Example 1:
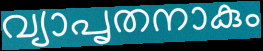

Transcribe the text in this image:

വ്യാപൃതനാകും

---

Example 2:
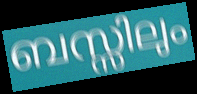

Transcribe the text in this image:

ബസ്സിലും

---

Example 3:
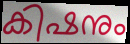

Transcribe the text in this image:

കിഷനും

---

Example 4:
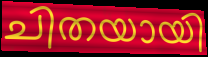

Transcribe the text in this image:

ചിതയായി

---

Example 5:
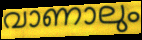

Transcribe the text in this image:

വാണാലും